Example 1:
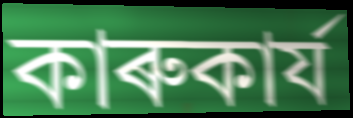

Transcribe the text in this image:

কাৰুকাৰ্য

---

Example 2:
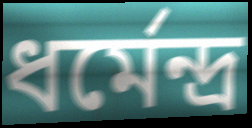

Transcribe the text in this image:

ধৰ্মেন্দ্ৰ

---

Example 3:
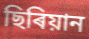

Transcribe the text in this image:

ছিৰিয়ান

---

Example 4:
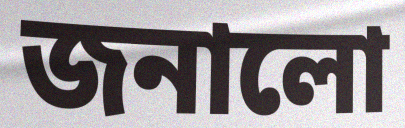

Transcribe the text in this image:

জনালো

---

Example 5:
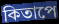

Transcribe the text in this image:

কিতাপে